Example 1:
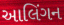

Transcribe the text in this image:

આલિંગન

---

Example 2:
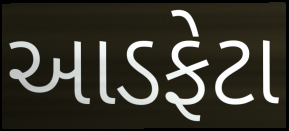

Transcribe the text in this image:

આડફેટા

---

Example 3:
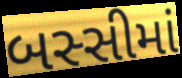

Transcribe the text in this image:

બસ્સીમાં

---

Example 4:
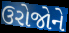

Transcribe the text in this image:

ઉરોજોને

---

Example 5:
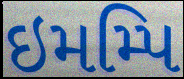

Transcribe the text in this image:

ઇમમ્પિ